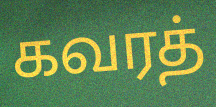
கவரத்